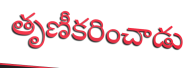
తృణీకరించాడు